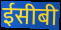
ईसीबी